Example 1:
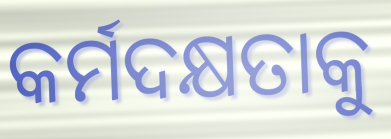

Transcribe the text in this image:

କର୍ମଦକ୍ଷତାକୁ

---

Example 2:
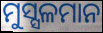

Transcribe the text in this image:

ମୁସ୍ସଳମାନ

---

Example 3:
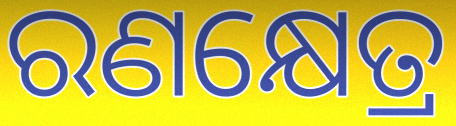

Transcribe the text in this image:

ରଣକ୍ଷେତ୍ର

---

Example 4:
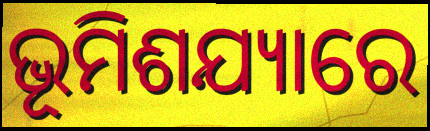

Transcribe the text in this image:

ଭୂମିଶଯ୍ୟାରେ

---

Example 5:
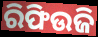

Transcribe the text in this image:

ରିଫିଉଜି